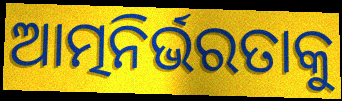
ଆତ୍ମନିର୍ଭରତାକୁ